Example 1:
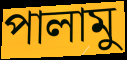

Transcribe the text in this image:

পালামু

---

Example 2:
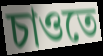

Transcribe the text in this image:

চাওতে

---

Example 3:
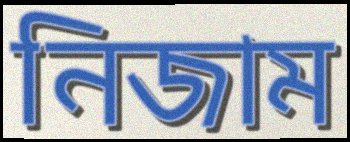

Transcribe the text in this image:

নিজাম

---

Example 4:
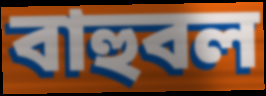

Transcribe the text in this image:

বাহুবল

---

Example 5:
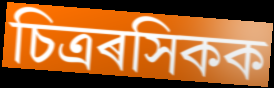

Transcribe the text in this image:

চিত্ৰৰসিকক